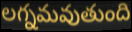
లగ్నమవుతుంది